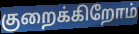
குறைக்கிறோம்